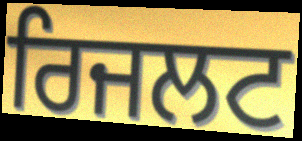
ਰਿਜਲਟ